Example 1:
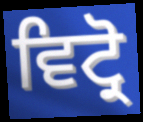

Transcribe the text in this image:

ਵਿਟ੍ਰੋ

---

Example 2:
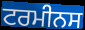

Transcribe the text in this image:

ਟਰਮੀਨਸ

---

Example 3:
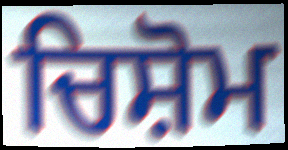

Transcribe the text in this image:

ਚਿਸ਼ੋਮ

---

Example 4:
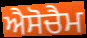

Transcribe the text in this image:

ਐਸੋਚੈਮ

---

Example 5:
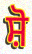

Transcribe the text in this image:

ਸ਼ੋ